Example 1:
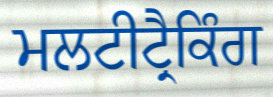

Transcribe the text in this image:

ਮਲਟੀਟ੍ਰੈਕਿੰਗ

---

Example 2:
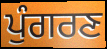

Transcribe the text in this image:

ਪੁੰਗਰਣ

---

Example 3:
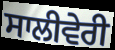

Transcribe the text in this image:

ਸਾਲੀਵੇਰੀ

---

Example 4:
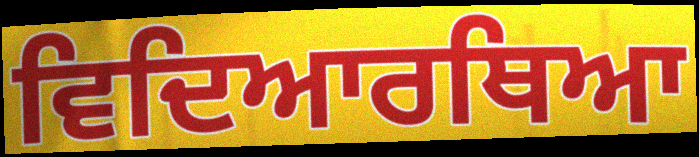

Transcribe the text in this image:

ਵਿਦਿਆਰਥਿਆ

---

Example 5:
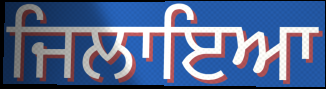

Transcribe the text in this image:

ਜਿਲਾਇਆ